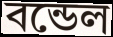
বন্ডেল